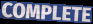
COMPLETE